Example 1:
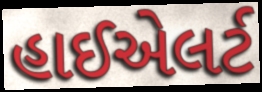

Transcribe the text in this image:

હાઈએલર્ટ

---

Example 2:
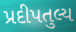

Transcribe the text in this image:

પ્રદીપતુલ્ય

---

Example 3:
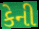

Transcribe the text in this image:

કેની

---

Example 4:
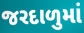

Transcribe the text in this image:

જરદાળુમાં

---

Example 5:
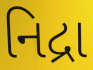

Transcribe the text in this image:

નિદ્રા